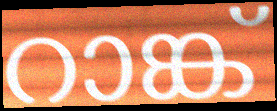
റാങ്ക്